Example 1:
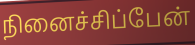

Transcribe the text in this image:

நினைச்சிப்பேன்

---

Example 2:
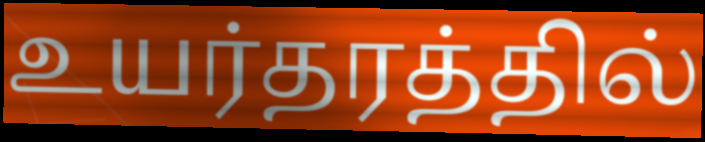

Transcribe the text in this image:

உயர்தரத்தில்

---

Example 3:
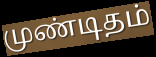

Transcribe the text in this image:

முண்டிதம்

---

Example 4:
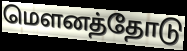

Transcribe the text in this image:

மௌனத்தோடு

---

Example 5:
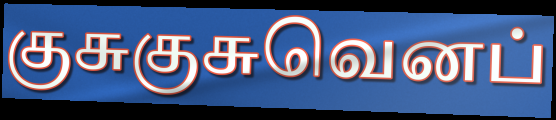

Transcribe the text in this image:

குசுகுசுவெனப்